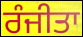
ਰੰਜੀਤਾ